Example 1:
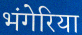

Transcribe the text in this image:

भंगेरिया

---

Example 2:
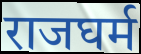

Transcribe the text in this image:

राजघर्म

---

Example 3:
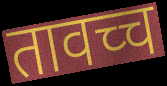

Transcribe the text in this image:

तावच्च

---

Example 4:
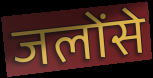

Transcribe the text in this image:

जलोंसे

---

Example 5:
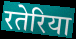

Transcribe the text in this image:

रतेरिया